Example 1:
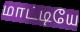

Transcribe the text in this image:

மாட்டியே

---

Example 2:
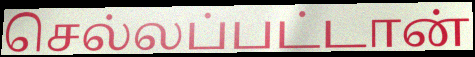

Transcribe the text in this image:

செல்லப்பட்டான்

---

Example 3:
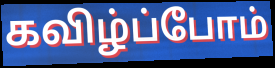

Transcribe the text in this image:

கவிழ்ப்போம்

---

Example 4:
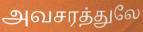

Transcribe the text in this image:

அவசரத்துலே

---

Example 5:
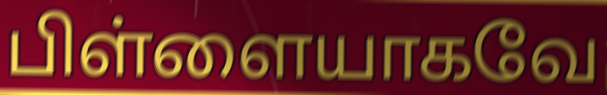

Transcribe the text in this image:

பிள்ளையாகவே